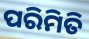
ପରିମିତି